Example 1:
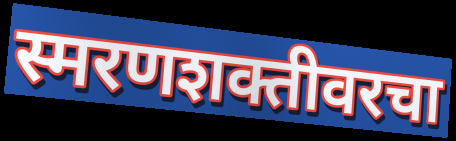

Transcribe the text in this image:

स्मरणशक्तीवरचा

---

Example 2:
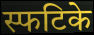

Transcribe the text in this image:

स्फटिके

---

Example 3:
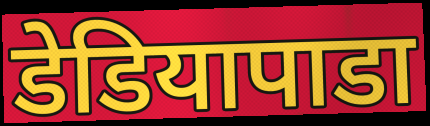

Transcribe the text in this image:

डेडियापाडा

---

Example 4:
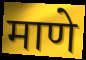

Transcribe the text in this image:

माणे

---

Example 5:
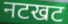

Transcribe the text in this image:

नटखट